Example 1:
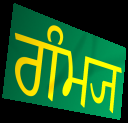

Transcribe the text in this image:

ਗੰਮ੍ਯ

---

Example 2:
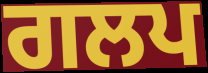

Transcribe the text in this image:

ਗਲਪ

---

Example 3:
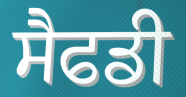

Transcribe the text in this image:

ਸੈਫਡੀ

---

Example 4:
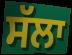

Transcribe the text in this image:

ਸੱਲਾ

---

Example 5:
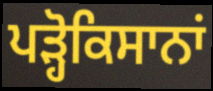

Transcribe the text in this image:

ਪੜ੍ਹੋਕਿਸਾਨਾਂ